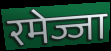
रमेज्जा